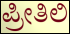
ಪ್ರೀತಿಲಿ